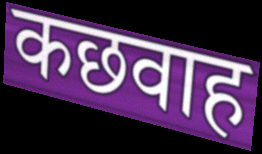
कछवाह